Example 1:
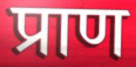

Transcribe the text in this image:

प्राण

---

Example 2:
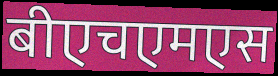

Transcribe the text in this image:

बीएचएमएस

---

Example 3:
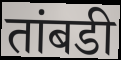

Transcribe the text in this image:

तांबडी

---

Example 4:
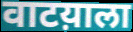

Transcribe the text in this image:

वाटय़ाला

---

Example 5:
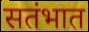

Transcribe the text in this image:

सतंभात